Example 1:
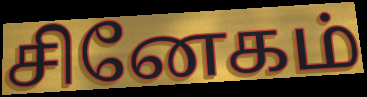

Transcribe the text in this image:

சினேகம்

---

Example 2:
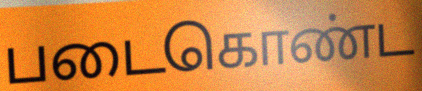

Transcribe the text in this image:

படைகொண்ட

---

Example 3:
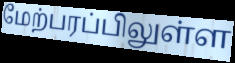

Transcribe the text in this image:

மேற்பரப்பிலுள்ள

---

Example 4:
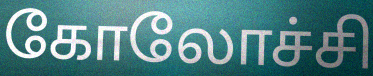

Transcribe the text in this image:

கோலோச்சி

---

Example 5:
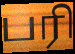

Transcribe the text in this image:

பரி